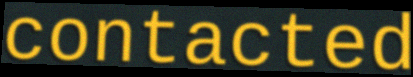
contacted